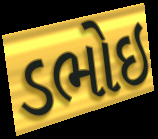
ડભોઇ